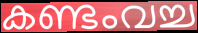
കണ്ടംവച്ച